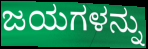
ಜಯಗಳನ್ನು